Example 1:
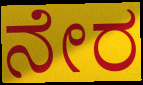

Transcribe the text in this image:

ನೇರ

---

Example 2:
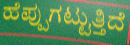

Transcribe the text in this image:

ಹೆಪ್ಪುಗಟ್ಟುತ್ತಿದೆ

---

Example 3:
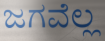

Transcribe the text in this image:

ಜಗವೆಲ್ಲ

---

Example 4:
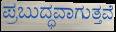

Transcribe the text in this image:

ಪ್ರಬುದ್ಧವಾಗುತ್ತವೆ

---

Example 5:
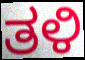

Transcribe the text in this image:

ತಳಿ